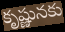
కృష్ణునకు